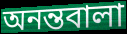
অনন্তবালা